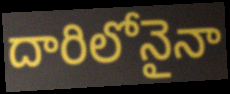
దారిలోనైనా